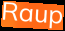
Raup